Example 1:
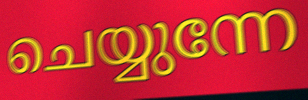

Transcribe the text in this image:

ചെയ്യുന്നേ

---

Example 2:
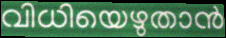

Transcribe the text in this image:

വിധിയെഴുതാൻ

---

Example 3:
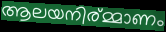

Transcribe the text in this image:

ആലയനിര്മ്മാണം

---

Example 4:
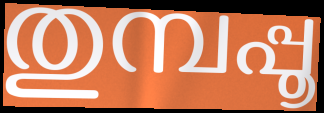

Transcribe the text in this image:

തുമ്പപ്പൂ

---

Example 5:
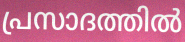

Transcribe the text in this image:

പ്രസാദത്തിൽ